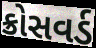
ક્રોસવર્ડ